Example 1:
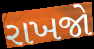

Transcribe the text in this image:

રાખજો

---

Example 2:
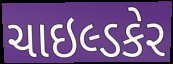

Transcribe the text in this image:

ચાઇલ્ડકેર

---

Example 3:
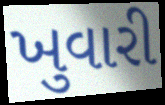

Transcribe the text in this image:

ખુવારી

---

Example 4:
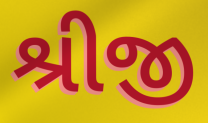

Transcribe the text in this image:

શ્રીજી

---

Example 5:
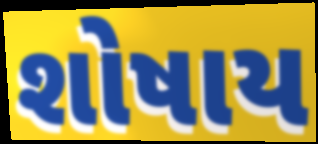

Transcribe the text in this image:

શોષાય